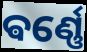
ଵର୍ଣ୍ଣେ